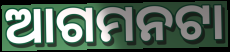
ଆଗମନଟା